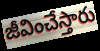
జీవించేస్తారు